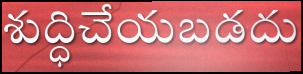
శుద్ధిచేయబడదు